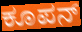
ಕೂಪನ್